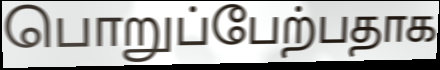
பொறுப்பேற்பதாக